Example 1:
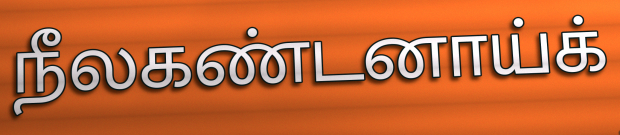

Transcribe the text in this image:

நீலகண்டனாய்க்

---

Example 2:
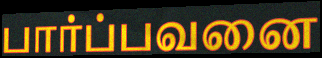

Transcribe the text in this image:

பார்ப்பவனை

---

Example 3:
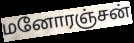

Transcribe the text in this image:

மனோரஞ்சன்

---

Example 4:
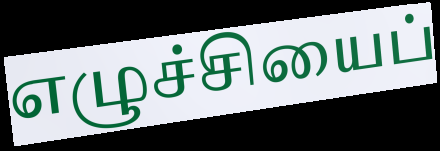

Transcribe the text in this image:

எழுச்சியைப்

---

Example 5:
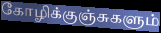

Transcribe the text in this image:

கோழிக்குஞ்சுகளும்